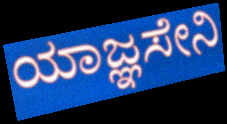
ಯಾಜ್ಞಸೇನಿ